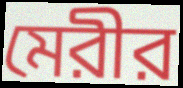
মেরীর